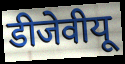
डीजेवीयू